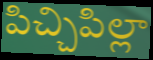
పిచ్చిపిల్లా